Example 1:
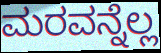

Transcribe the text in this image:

ಮರವನ್ನೆಲ್ಲ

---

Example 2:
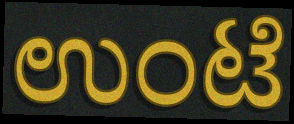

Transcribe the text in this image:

ಉಂಟೆ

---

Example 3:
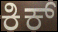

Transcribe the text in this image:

ಕಿಕ್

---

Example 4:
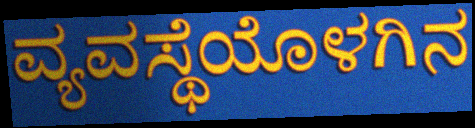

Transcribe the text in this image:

ವ್ಯವಸ್ಥೆಯೊಳಗಿನ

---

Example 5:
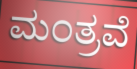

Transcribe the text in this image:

ಮಂತ್ರವೆ